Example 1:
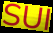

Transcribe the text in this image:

SUI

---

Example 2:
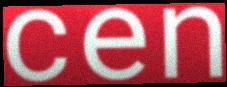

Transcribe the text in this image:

cen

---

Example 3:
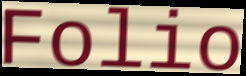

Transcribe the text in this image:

Folio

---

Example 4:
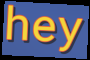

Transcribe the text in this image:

hey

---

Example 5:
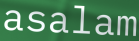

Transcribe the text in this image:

asalam